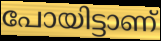
പോയിട്ടാണ്